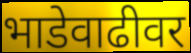
भाडेवाढीवर